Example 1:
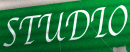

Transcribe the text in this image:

STUDIO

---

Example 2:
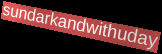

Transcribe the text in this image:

sundarkandwithuday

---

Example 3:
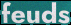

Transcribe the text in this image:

feuds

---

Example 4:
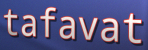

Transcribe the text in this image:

tafavat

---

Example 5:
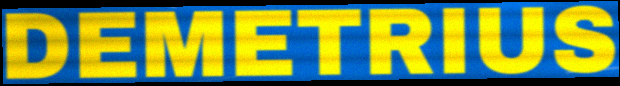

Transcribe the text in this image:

DEMETRIUS